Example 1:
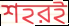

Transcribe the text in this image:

শহরই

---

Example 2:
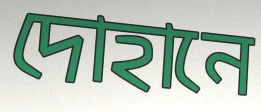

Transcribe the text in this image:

দোহানে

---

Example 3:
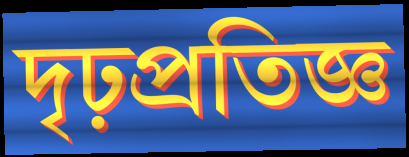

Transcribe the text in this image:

দৃঢ়প্রতিজ্ঞ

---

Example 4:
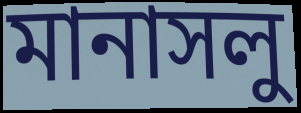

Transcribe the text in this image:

মানাসলু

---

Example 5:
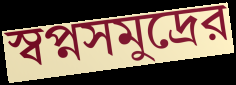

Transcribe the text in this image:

স্বপ্নসমুদ্রের